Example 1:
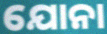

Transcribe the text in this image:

ଯୋନା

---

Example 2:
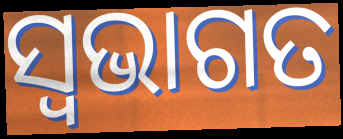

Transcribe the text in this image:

ସ୍ଵଭାଗତ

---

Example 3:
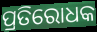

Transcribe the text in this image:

ପ୍ରତିରୋଧକ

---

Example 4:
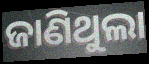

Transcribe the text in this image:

ଜାଣିଥୁଲା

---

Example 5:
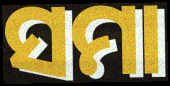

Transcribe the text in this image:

ସମା